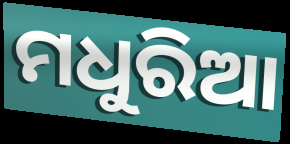
ମଧୁରିଆ